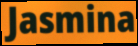
Jasmina